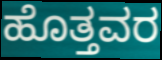
ಹೊತ್ತವರ